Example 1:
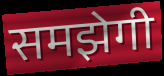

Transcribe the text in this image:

समझेगी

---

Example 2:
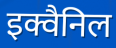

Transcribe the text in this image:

इक्वैनिल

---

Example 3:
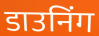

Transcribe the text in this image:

डाउनिंग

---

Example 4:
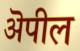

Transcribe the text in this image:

ऄपील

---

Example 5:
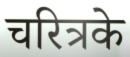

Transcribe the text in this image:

चरित्रके